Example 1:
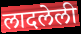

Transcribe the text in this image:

लादलेली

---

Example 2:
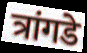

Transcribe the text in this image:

त्रांगडे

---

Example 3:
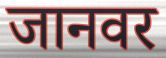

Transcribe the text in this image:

जानवर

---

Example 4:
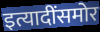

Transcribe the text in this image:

इत्यादींसमोर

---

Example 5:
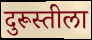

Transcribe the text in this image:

दुरूस्तीला